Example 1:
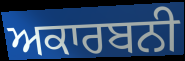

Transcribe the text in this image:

ਅਕਾਰਬਨੀ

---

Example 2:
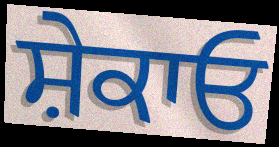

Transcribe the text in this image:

ਸ਼ੇਕਾਓ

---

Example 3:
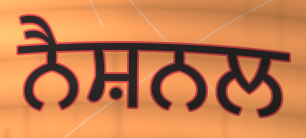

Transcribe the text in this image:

ਨੈਸ਼ਨਲ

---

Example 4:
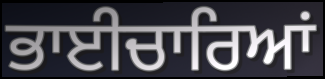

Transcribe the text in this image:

ਭਾਈਚਾਰਿਆਂ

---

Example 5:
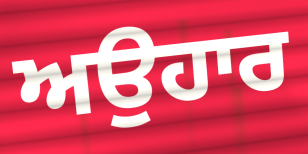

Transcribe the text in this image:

ਅਉਹਾਰ